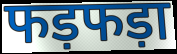
फड़फड़ा